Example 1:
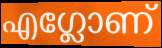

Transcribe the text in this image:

എഗ്ലോണ്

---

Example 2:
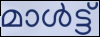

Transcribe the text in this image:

മാൾട്ട്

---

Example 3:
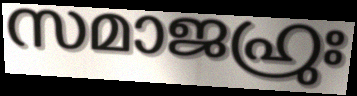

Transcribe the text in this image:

സമാജഹ്രുഃ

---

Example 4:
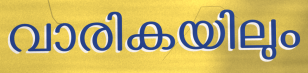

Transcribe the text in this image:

വാരികയിലും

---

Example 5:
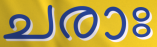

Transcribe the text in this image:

ചരാഃ